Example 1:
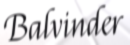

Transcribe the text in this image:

Balvinder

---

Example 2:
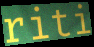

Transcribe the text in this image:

riti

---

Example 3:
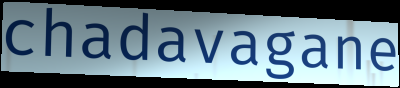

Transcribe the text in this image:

chadavagane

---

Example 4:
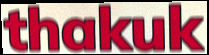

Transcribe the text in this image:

thakuk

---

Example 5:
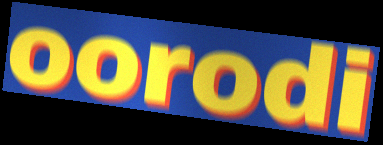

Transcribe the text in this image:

oorodi